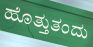
ಹೊತ್ತುತಂದು